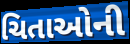
ચિતાઓની